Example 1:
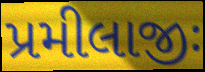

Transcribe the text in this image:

પ્રમીલાજીઃ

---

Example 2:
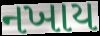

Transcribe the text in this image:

નખાય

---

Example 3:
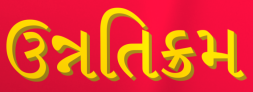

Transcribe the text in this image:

ઉન્નતિક્રમ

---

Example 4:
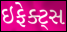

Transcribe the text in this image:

ઇફેક્ટ્સ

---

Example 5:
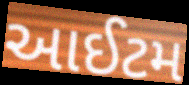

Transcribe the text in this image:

આઈટમ